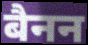
बैनन